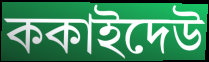
ককাইদেউ